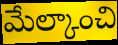
మేల్కాంచి